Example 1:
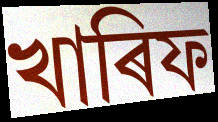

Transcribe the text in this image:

খাৰিফ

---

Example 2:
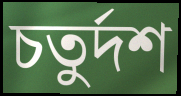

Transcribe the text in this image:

চতুৰ্দশ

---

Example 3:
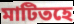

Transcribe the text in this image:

মাটিতহে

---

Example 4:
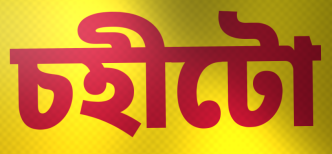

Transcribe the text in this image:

চহীটো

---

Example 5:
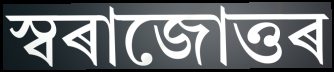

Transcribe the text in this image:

স্বৰাজোত্তৰ